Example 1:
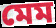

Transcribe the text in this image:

মেম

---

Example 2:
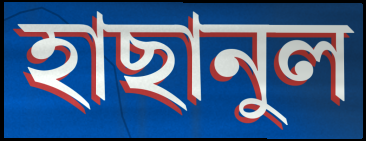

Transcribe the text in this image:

হাছানুল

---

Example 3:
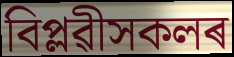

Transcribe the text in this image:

বিপ্লৱীসকলৰ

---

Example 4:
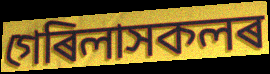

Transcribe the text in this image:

গেৰিলাসকলৰ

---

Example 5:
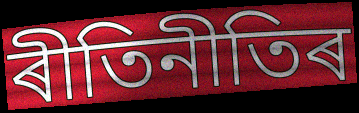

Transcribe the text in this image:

ৰীতিনীতিৰ